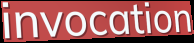
invocation